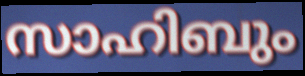
സാഹിബും